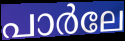
പാർലേ